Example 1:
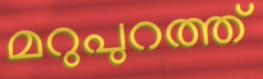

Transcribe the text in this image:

മറുപുറത്ത്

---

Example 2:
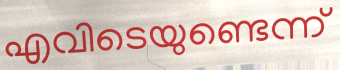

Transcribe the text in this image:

എവിടെയുണ്ടെന്ന്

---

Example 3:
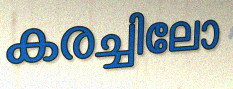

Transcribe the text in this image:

കരച്ചിലോ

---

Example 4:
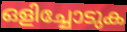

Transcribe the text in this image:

ഒളിച്ചോടുക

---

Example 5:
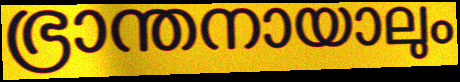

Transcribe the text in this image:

ഭ്രാന്തനായാലും